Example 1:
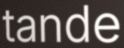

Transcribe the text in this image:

tande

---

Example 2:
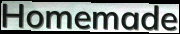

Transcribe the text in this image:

Homemade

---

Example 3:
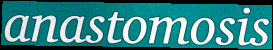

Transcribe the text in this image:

anastomosis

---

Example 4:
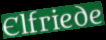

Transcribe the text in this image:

Elfriede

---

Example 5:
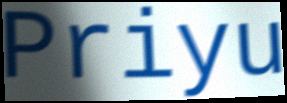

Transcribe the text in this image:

Priyu